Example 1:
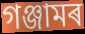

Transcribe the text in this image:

গঞ্জামৰ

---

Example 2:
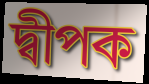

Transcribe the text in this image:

দ্বীপক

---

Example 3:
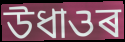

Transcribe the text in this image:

উধাওৰ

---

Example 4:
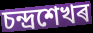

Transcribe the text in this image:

চন্দ্ৰশেখৰ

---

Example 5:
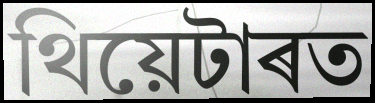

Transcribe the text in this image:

থিয়েটাৰত